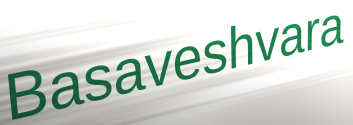
Basaveshvara